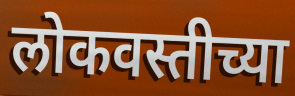
लोकवस्तीच्या